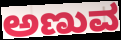
ಅಣುವ